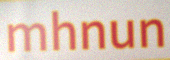
mhnun